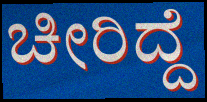
ಚೀರಿದ್ದೆ